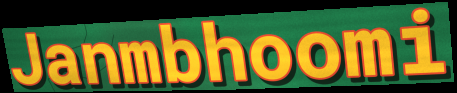
Janmbhoomi